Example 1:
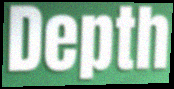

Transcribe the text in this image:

Depth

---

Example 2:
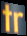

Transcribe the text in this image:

tr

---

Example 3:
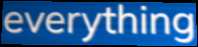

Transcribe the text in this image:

everything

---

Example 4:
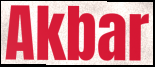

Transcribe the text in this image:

Akbar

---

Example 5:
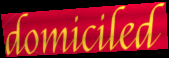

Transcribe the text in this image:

domiciled